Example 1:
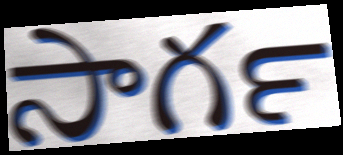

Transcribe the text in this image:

సాగర్‍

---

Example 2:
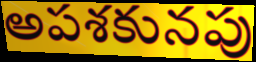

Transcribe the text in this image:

అపశకునపు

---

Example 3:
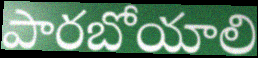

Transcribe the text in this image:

పారబోయాలి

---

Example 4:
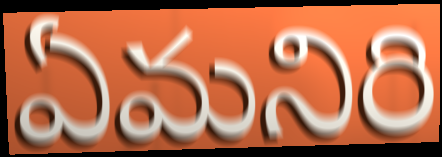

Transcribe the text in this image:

ఏమనిరి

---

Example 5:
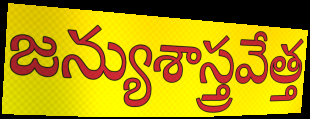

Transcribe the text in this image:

జన్యుశాస్త్రవేత్త